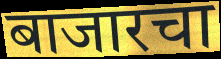
बाजारचा